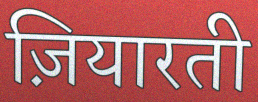
ज़ियारती